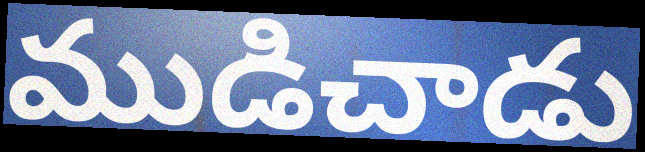
ముడిచాడు